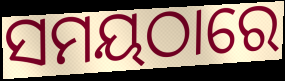
ସମୟଠାରେ